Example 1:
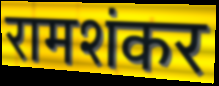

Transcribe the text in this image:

रामशंकर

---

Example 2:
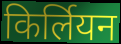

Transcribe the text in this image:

किर्लियन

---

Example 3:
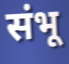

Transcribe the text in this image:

संभू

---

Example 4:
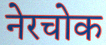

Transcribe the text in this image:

नेरचोक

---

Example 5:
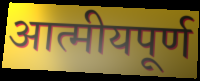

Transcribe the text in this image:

आत्मीयपूर्ण